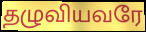
தழுவியவரே